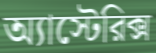
অ্যাস্টেরিক্স